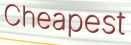
Cheapest